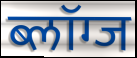
ब्लॉग्ज